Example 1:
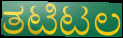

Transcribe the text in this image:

ತಟಿಟಲ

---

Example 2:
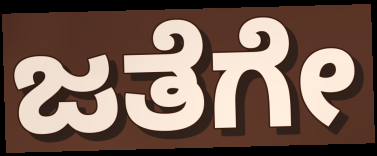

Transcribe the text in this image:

ಜತೆಗೇ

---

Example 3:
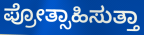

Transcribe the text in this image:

ಪ್ರೋತ್ಸಾಹಿಸುತ್ತಾ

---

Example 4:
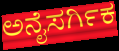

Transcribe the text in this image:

ಅನೈಸರ್ಗಿಕ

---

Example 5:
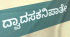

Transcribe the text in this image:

ದ್ವಾದಸಕನಿಪಾತೇ